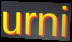
urni